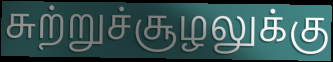
சுற்றுச்சூழலுக்கு